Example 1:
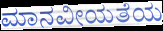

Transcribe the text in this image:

ಮಾನವೀಯತೆಯ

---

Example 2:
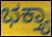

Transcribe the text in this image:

ಭಕ್ತ್ಯಾ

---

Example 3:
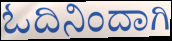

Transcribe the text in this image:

ಓದಿನಿಂದಾಗಿ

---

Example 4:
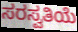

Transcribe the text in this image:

ಸರಸ್ವತಿಯೆ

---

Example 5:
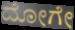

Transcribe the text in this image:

ದೋಗೇ